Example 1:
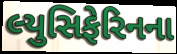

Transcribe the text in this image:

લ્યુસિફેરિનના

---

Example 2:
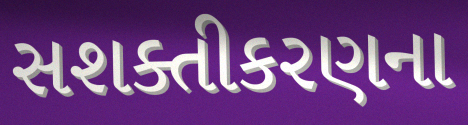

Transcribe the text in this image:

સશક્તીકરણના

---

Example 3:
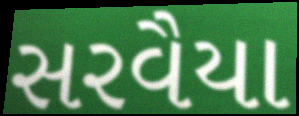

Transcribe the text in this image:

સરવૈયા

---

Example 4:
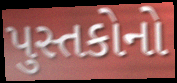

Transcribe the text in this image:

પુસ્તકોનો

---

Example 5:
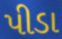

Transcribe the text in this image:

પીડા